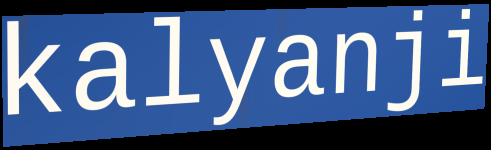
kalyanji